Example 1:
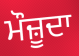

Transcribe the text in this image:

ਮੌਜ਼ੂਦਾ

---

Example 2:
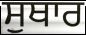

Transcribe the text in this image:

ਸੁਥਾਰ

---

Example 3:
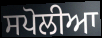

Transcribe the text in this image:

ਸਪੋਲੀਆ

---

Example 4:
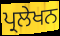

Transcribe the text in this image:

ਪ੍ਰਲੇਖਨ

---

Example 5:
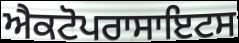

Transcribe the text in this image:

ਐਕਟੋਪਰਾਸਾਇਟਸ